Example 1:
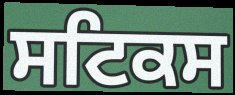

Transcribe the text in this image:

ਸਟਿਕਸ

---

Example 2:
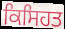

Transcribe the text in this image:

ਕਿਸਿਹਤ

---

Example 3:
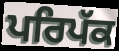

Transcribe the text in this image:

ਪਰਿਪੱਕ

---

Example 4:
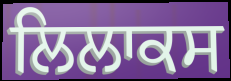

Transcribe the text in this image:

ਲਿਲਾਕਸ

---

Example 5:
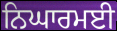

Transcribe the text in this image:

ਨਿਘਾਰਮਈ